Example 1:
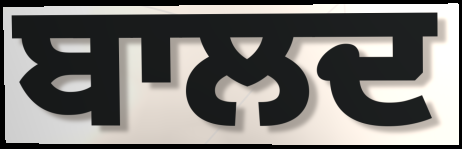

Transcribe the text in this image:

ਬਾਲਦ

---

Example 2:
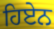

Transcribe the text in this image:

ਹਿਏਨ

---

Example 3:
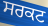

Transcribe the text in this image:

ਸਰਕਟ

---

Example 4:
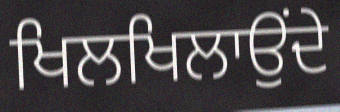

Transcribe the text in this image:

ਖਿਲਖਿਲਾਉਂਦੇ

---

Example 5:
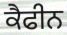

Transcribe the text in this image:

ਕੈਫੀਨ